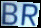
BR